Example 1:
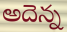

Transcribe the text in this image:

అదెన్న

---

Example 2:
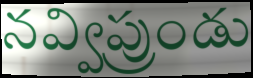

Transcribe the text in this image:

నవ్విప్రుండు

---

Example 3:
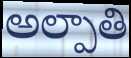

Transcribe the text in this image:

అల్పాతి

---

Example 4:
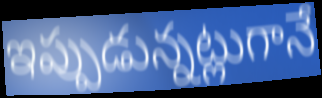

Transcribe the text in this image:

ఇప్పుడున్నట్లుగానే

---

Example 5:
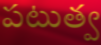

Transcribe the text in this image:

పటుత్వ